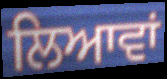
ਲਿਆਵਾਂ